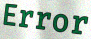
Error